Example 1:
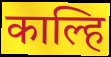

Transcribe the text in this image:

काल्हि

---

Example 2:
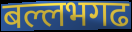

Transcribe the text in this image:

बल्लभगढ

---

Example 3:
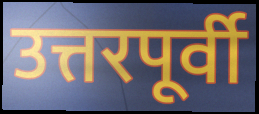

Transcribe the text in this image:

उत्तरपूर्वी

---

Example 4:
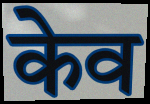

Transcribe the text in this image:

केव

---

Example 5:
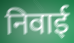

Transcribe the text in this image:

निवाई